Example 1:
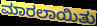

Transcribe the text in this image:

ಮಾರಲಾಯಿತು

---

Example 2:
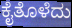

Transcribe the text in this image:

ಕೈತೊಳೆದು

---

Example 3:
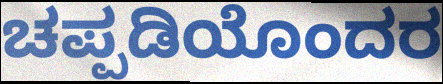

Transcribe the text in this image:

ಚಪ್ಪಡಿಯೊಂದರ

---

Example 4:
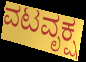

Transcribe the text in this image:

ವಟವೃಕ್ಷ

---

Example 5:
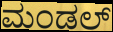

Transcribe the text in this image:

ಮಂಡಲ್